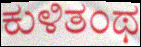
ಕುಳಿತಂಥ